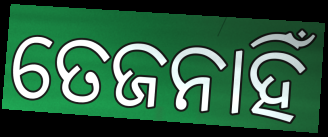
ତେଜନାହିଁ